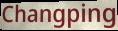
Changping